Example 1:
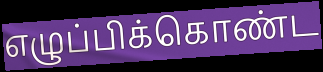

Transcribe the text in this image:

எழுப்பிக்கொண்ட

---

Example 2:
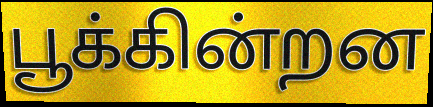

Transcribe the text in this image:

பூக்கின்றன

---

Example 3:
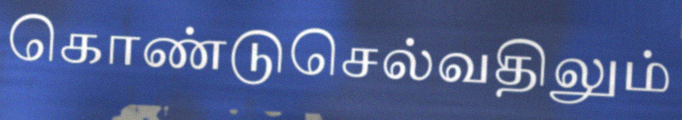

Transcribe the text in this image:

கொண்டுசெல்வதிலும்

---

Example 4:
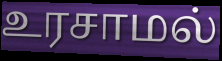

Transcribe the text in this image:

உரசாமல்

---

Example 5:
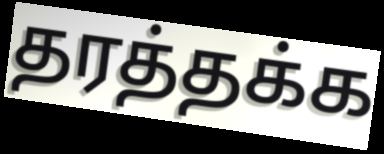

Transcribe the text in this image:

தரத்தக்க